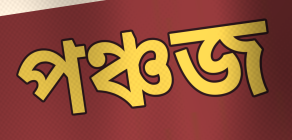
পঞ্চজ